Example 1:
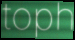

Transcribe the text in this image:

toph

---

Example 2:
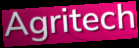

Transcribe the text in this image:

Agritech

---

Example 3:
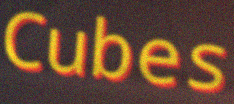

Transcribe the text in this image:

Cubes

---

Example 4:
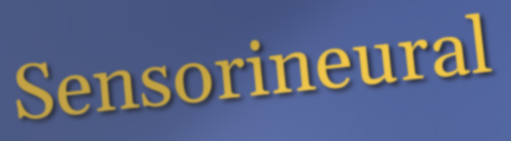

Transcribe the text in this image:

Sensorineural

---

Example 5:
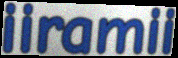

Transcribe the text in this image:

iiramii